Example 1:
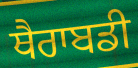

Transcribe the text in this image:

ਥੈਰਾਬਡੀ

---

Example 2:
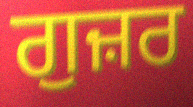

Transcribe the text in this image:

ਗੁਜ਼ਰ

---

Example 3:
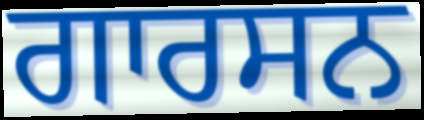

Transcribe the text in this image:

ਗਾਰਸਨ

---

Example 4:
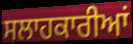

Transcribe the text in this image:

ਸਲਾਹਕਾਰੀਆਂ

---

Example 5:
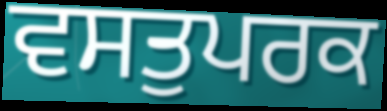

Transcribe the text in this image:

ਵਸਤੁਪਰਕ